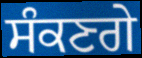
ਸੰਕਣਗੇ